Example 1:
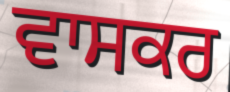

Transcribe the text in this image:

ਵਾਸਕਰ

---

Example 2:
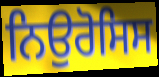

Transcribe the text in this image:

ਨਿਉਰੋਸਿਸ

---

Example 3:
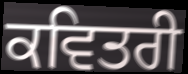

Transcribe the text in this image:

ਕਵਿਤਰੀ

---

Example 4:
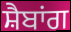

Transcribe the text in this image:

ਸ਼ੈਬਾਂਗ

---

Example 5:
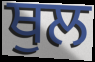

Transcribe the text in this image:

ਥੁਲ